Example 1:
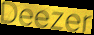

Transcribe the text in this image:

Deezer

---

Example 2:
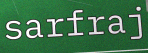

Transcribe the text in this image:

sarfraj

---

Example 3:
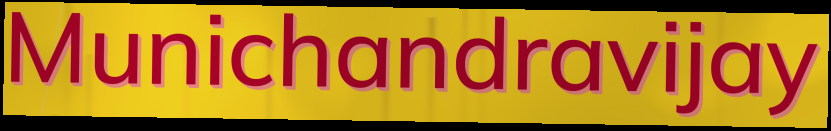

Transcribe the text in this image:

Munichandravijay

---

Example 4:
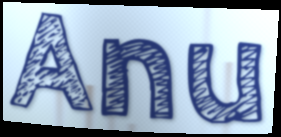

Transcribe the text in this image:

Anu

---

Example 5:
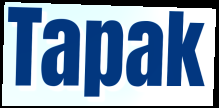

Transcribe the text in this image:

Tapak